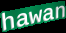
hawan